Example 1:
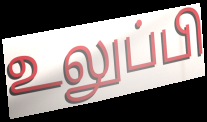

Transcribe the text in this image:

உலுப்பி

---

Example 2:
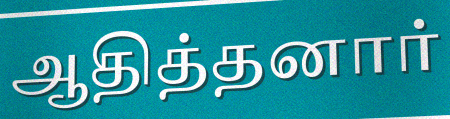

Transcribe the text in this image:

ஆதித்தனார்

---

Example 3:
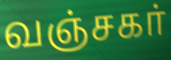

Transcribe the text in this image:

வஞ்சகர்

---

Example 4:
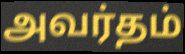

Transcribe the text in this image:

அவர்தம்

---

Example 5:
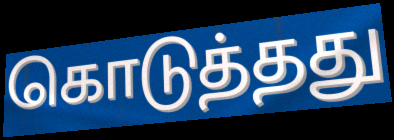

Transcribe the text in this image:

கொடுத்தது